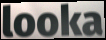
looka